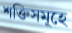
শক্তিসমূহে